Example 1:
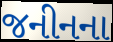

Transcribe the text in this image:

જનીનના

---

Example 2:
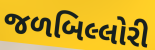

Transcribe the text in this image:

જળબિલ્લોરી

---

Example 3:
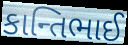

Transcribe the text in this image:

કાન્તિભાઈ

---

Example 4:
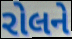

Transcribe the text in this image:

રોલને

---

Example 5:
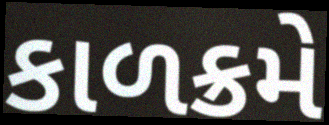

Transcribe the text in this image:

કાળક્રમે